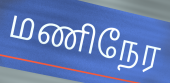
மணிநேர